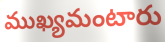
ముఖ్యమంటారు